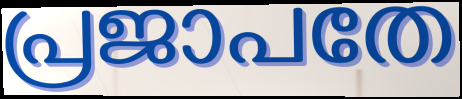
പ്രജാപതേ